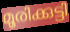
മൂരിക്കുട്ടി